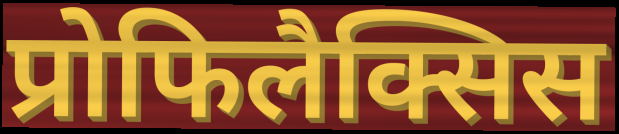
प्रोफिलैक्सिस